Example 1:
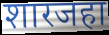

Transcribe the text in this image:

शारजहा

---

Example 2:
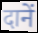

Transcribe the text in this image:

दानें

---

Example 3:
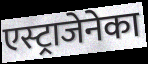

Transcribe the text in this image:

एस्‍ट्राजेनेका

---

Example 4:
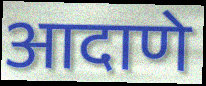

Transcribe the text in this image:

आदाणे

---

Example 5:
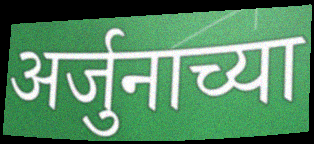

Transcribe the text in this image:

अर्जुनाच्या